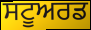
ਸਟੂਅਰਡ